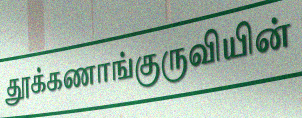
தூக்கணாங்குருவியின்